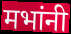
मभांनी